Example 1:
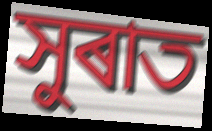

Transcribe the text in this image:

সুৰাত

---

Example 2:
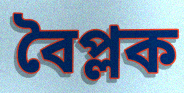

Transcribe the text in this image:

বৈপ্লক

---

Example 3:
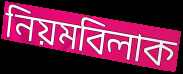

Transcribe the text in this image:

নিয়মবিলাক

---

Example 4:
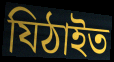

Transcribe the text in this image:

যিঠাইত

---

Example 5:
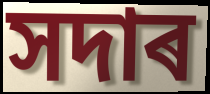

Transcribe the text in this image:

সদাৰ